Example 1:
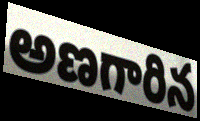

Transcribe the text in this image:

అణగారిన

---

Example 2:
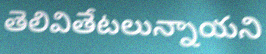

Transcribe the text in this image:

తెలివితేటలున్నాయని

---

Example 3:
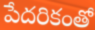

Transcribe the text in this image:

పేదరికంతో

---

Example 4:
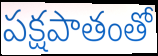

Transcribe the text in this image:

పక్షపాతంతో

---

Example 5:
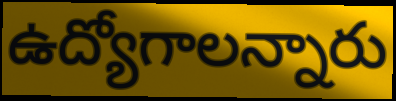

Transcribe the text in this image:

ఉద్యోగాలన్నారు